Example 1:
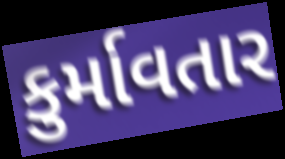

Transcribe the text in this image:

કુર્માવતાર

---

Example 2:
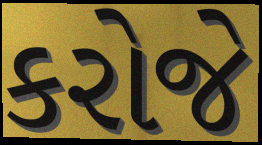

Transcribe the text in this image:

કરોજે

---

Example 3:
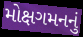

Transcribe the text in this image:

મોક્ષગમનનું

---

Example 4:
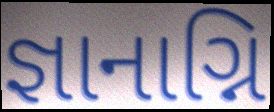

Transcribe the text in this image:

જ્ઞાનાગ્નિ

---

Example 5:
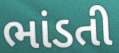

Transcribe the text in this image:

ભાંડતી